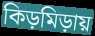
কিড়মিড়ায়